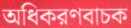
অধিকরণবাচক